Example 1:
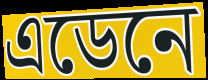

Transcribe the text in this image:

এডেনে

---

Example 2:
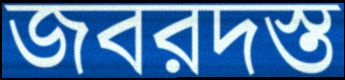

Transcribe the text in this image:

জবরদস্ত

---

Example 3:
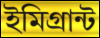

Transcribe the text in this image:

ইমিগ্রান্ট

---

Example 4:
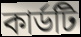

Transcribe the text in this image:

কার্ডটি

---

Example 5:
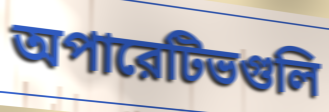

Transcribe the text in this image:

অপারেটিভগুলি